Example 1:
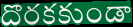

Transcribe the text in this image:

దొరకకుండా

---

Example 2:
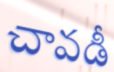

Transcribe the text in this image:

చావడీ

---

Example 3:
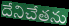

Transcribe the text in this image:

దేనిచేతను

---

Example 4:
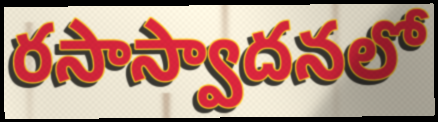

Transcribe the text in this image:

రసాస్వాదనలో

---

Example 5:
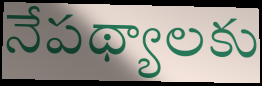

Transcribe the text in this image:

నేపథ్యాలకు